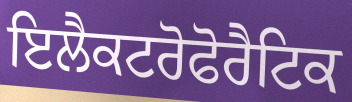
ਇਲੈਕਟਰੋਫੋਰੈਟਿਕ